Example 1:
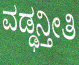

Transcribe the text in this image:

ವಡ್ಢನ್ತೀತಿ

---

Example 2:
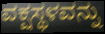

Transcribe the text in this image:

ವಕ್ಷಸ್ಥಳವನ್ನು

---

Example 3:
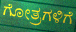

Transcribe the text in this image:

ಗೋತ್ರಗಳಿಗೆ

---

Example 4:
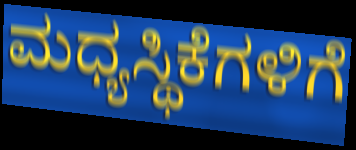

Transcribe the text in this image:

ಮಧ್ಯಸ್ಥಿಕೆಗಳಿಗೆ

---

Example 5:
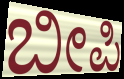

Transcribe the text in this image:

ಬೀಪಿ